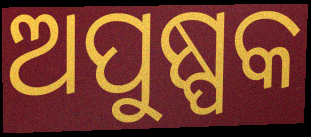
ଅପୁଷ୍ପକ